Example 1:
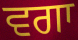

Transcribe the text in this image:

ਵਗਾ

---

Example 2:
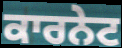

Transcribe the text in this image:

ਕਾਰਨੇਟ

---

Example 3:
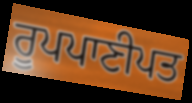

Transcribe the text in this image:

ਰੂਪਪਾਣੀਪਤ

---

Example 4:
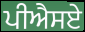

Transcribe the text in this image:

ਪੀਐਸਏ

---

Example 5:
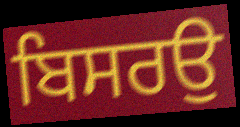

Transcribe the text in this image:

ਬਿਸਰਉ